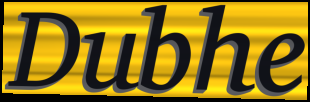
Dubhe